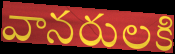
వానరులకి